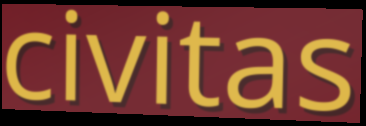
civitas